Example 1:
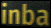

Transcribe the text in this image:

inba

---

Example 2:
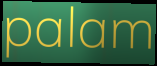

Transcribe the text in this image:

palam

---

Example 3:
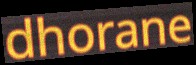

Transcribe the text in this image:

dhorane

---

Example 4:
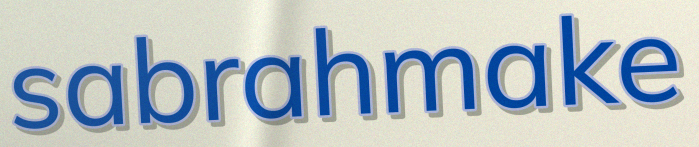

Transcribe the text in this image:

sabrahmake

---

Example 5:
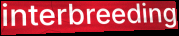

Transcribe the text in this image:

interbreeding